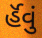
ર્હૅવું